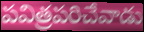
పవిత్రపరిచేవాడు